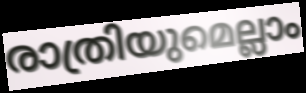
രാത്രിയുമെല്ലാം